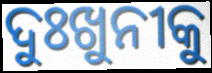
ଦୁଃଖୁନୀକୁ